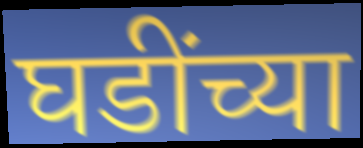
घडींच्या